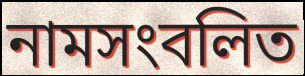
নামসংবলিত